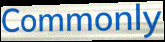
Commonly